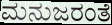
ಮನುಜರಂತೆ